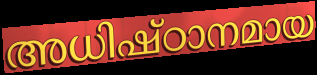
അധിഷ്ഠാനമായ